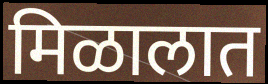
मिळालात